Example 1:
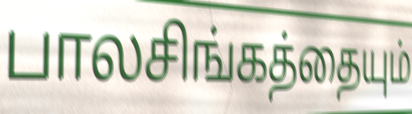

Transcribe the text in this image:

பாலசிங்கத்தையும்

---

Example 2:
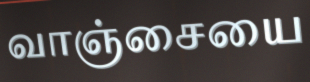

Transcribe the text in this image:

வாஞ்சையை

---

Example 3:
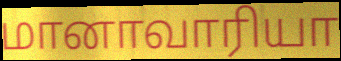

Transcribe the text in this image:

மானாவாரியா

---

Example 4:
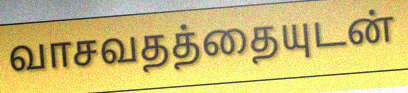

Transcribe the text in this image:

வாசவதத்தையுடன்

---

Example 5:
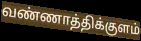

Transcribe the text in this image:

வண்ணாத்திக்குளம்